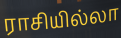
ராசியில்லா